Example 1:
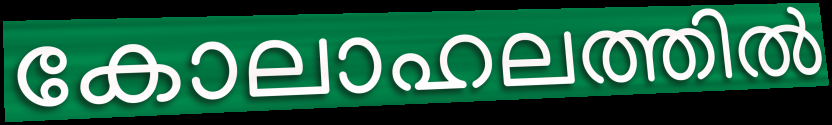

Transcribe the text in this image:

കോലാഹലത്തിൽ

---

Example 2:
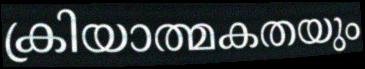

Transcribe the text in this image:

ക്രിയാത്മകതയും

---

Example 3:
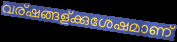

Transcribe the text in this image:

വര്ഷങ്ങള്ക്കുശേഷമാണ്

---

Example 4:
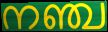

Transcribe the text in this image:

നഞ്ച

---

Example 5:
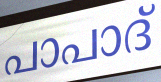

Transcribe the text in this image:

പാപാദ്